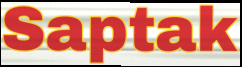
Saptak